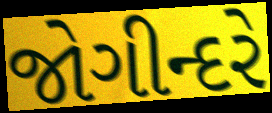
જોગીન્દરે